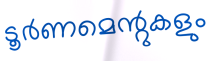
ടൂർണമെന്റുകളും